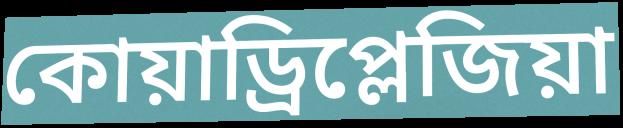
কোয়াড্রিপ্লেজিয়া